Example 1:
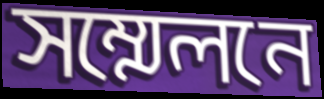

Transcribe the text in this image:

সম্মেলনে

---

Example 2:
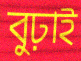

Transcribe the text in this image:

বুঢ়াই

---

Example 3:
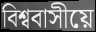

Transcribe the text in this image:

বিশ্ববাসীয়ে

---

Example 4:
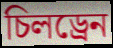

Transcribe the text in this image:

চিলড্ৰেন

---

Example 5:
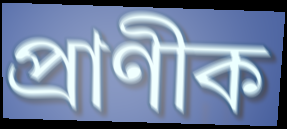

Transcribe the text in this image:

প্ৰাণীক